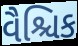
વૈશ્ચિક